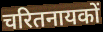
चरितनायकों